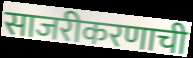
साजरीकरणाची